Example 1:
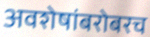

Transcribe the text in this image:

अवशेषांबरोबरच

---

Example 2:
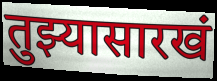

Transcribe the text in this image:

तुझ्यासारखं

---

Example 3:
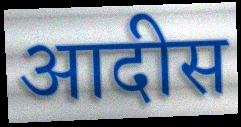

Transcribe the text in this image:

आदीस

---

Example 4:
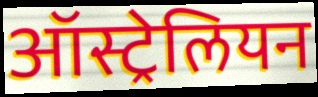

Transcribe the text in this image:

ऑस्ट्रेलियन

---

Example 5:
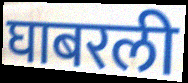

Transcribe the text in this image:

घाबरली